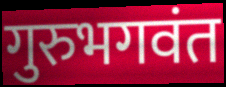
गुरुभगवंत